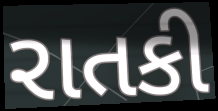
રાતકી